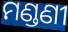
ମଣ୍ଡଣୀ